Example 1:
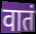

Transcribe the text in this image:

वातं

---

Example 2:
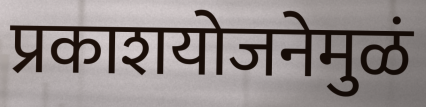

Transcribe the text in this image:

प्रकाशयोजनेमुळं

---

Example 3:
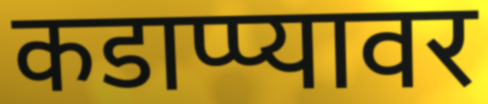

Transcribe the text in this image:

कडाप्प्यावर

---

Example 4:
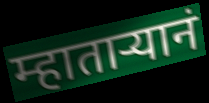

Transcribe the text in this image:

म्हाताऱ्यानं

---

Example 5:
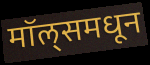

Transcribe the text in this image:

मॉल्समधून